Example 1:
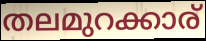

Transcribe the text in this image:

തലമുറക്കാര്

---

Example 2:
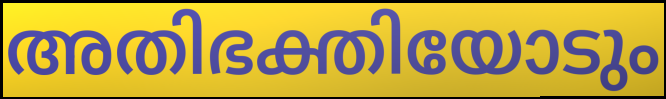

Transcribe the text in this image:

അതിഭക്തിയോടും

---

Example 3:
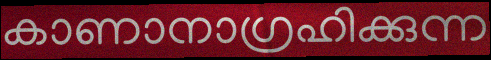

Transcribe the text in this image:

കാണാനാഗ്രഹിക്കുന്ന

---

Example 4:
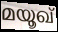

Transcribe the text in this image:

മയൂഖ്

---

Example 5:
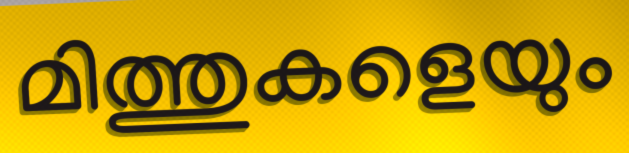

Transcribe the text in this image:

മിത്തുകളെയും